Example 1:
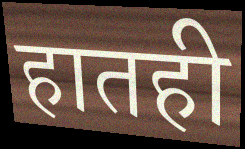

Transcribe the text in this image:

हातही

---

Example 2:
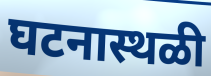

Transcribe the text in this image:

घटनास्थळी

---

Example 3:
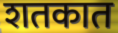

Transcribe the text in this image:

शतकात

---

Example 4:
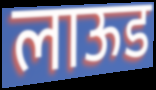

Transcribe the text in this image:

लाऊड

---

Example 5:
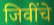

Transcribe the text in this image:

जिवींचे